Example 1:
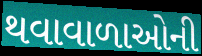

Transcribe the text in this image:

થવાવાળાઓની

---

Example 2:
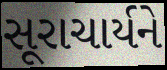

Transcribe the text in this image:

સૂરાચાર્યને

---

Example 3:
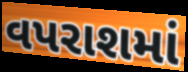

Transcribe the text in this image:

વપરાશમાં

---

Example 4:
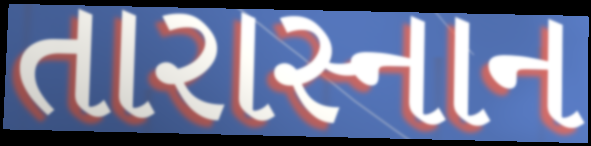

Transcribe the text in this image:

તારાસ્નાન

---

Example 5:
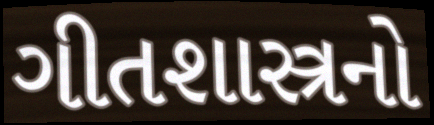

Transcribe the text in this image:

ગીતશાસ્ત્રનો